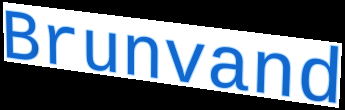
Brunvand